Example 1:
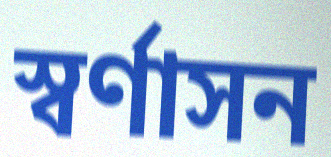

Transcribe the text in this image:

স্বর্ণাসন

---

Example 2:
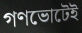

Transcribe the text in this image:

গণভোটেই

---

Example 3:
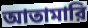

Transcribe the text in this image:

আতামারি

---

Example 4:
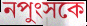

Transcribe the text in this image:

নপুংসকে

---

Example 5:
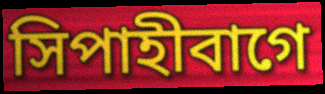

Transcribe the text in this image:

সিপাহীবাগে